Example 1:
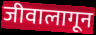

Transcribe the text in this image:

जीवालागून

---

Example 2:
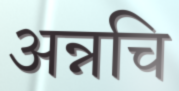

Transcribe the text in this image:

अन्नचि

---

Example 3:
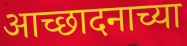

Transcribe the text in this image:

आच्छादनाच्या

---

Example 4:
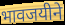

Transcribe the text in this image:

भावजयीने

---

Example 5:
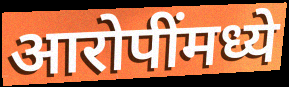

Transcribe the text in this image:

आरोपींमध्ये